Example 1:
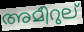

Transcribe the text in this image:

അമീറുല്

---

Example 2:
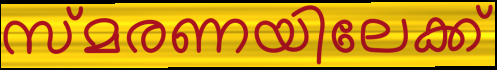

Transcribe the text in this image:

സ്മരണയിലേക്ക്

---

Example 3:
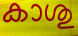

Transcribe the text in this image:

കാശു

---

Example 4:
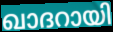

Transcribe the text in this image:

ഖാദറായി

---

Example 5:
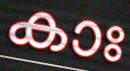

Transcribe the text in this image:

കാഃ